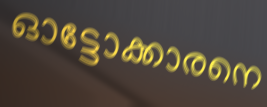
ഓട്ടോക്കാരനെ